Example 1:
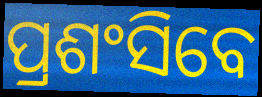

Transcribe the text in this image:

ପ୍ରଶଂସିବେ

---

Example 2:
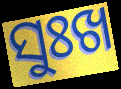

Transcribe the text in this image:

ସୁଃଖ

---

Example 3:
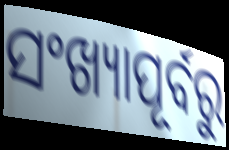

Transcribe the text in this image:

ସଂଖ୍ୟାପୂର୍ବରୁ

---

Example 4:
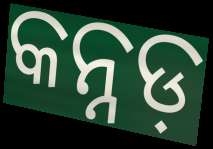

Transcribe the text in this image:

କନ୍ନଡ଼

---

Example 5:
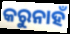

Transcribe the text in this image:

କରୁନାହଁ